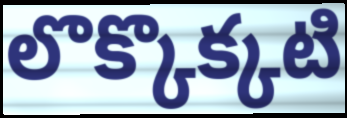
లొక్కొక్కటి